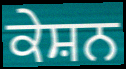
ਕੇਸ਼ਨ